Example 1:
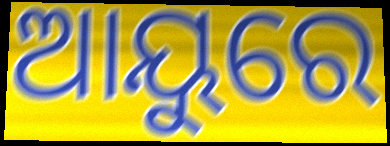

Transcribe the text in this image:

ଆୟୁରେ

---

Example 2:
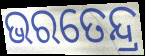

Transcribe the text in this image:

ଭରତେନ୍ଦ୍ର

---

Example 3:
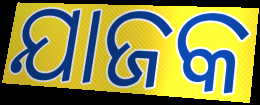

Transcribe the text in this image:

ଯାଜକ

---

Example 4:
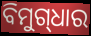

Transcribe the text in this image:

ବିମୁଗ୍‌ଧାର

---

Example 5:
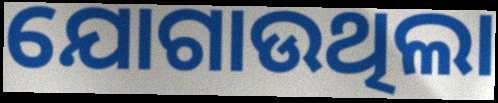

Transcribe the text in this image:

ଯୋଗାଉଥିଲା